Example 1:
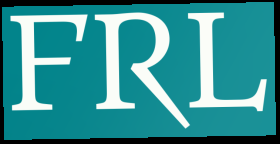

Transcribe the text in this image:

FRL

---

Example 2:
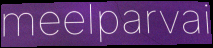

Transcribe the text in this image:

meelparvai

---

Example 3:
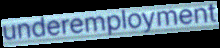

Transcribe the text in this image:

underemployment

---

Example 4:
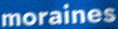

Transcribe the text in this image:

moraines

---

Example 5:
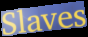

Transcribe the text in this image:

Slaves